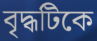
বৃদ্ধটিকে